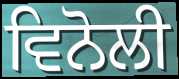
ਵਿਨੋਲੀ